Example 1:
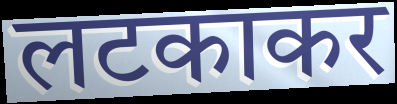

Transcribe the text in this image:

लटकाकर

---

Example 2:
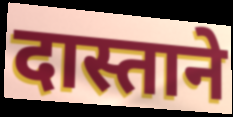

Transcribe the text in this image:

दास्ताने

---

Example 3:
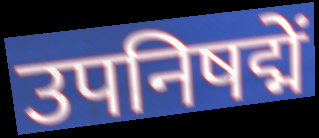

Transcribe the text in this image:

उपनिषद्में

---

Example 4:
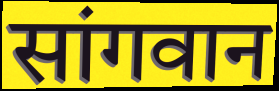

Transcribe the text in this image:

सांगवान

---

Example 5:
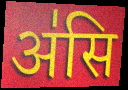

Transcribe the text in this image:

अ॑सि